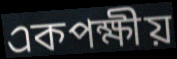
একপক্ষীয়